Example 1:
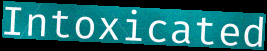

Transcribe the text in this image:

Intoxicated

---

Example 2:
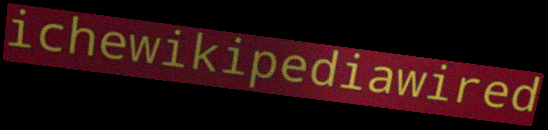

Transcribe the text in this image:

ichewikipediawired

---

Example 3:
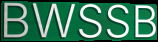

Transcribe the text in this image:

BWSSB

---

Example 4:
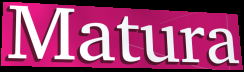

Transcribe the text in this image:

Matura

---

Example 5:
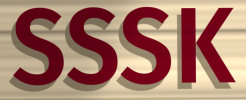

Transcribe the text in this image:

SSSK